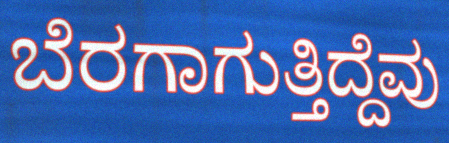
ಬೆರಗಾಗುತ್ತಿದ್ದೆವು